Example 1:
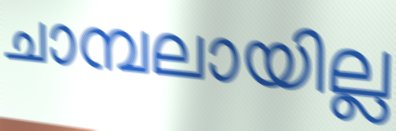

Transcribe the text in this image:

ചാമ്പലായില്ല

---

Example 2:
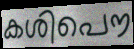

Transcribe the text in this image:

കശിപൌ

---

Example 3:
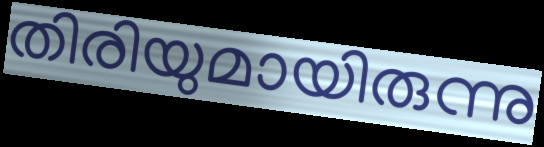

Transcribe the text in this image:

തിരിയുമായിരുന്നു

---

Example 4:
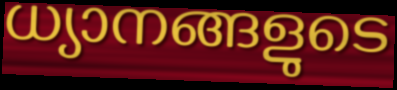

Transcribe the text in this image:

ധ്യാനങ്ങളുടെ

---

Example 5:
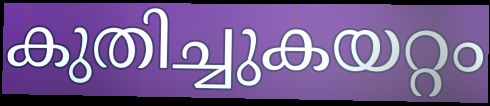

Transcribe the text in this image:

കുതിച്ചുകയറ്റം